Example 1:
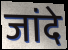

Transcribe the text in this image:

जांदे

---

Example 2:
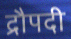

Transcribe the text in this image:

द्रौपदी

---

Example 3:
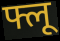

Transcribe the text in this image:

फ्लू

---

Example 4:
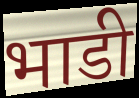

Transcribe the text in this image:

भाडी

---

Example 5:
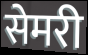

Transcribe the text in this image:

सेमरी